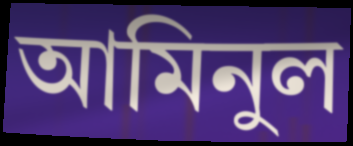
আমিনুল